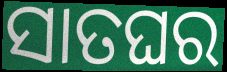
ସାତଘର